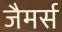
जैमर्स